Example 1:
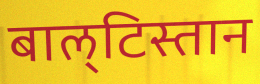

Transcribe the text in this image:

बाल्टिस्तान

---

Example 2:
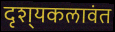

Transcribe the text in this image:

दृश्यकलावंत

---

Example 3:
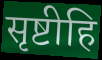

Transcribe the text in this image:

सृष्टीहि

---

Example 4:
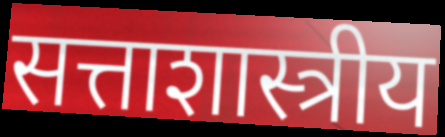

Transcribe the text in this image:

सत्ताशास्त्रीय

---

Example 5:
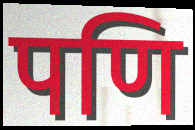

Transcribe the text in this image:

पणि